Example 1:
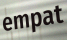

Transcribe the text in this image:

empat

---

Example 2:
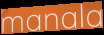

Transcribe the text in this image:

manala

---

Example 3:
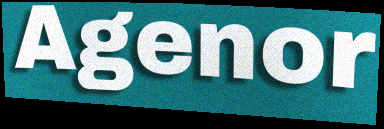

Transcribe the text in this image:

Agenor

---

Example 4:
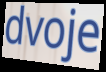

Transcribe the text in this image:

dvoje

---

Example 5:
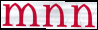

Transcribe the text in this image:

mnn